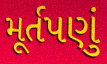
મૂર્તપણું